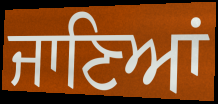
ਜਾਣਿਆਂ